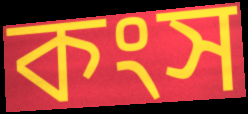
কংস